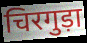
चिरगुड़ा